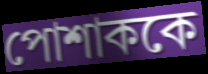
পোশাককে